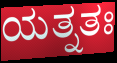
ಯತ್ನತಃ